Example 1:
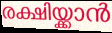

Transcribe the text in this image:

രക്ഷിയ്ക്കാൻ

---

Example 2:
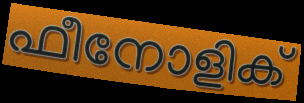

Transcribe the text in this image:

ഫീനോളിക്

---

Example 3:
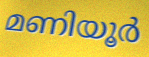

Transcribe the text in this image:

മണിയൂർ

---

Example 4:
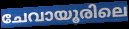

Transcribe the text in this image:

ചേവായൂരിലെ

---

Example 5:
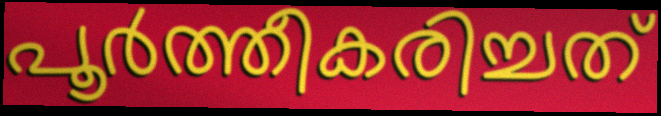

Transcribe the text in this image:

പൂർത്തീകരിച്ചത്